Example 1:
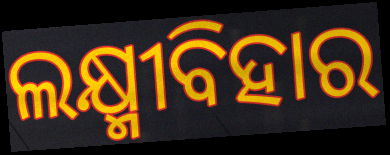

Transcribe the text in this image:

ଲକ୍ଷ୍ମୀବିହାର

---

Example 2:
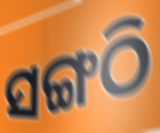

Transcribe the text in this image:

ସଙ୍ଗଠି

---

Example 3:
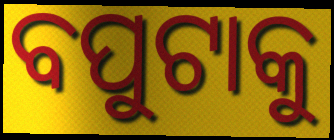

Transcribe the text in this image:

ବପୁଟାକୁ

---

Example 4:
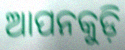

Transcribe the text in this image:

ଆପନକୁଡ଼ି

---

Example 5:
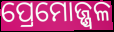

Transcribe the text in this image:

ପ୍ରେମୋଜ୍ଜ୍ୱଳ